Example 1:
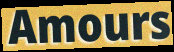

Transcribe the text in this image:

Amours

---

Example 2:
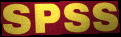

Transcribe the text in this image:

SPSS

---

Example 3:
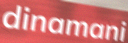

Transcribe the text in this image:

dinamani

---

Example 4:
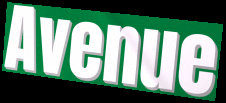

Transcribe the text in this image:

Avenue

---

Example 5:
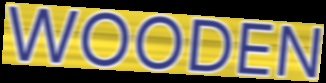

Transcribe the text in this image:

WOODEN